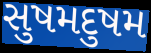
સુષમદુષમ